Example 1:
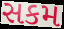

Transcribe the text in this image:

સકમ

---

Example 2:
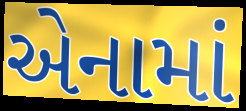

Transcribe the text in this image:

એનામાં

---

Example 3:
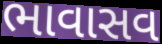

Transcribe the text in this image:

ભાવાસવ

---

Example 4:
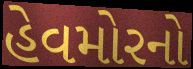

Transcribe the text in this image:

હેવમોરનો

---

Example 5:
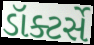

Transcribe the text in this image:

ડૉક્ટર્સે